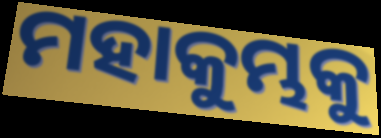
ମହାକୁମ୍ଭକୁ